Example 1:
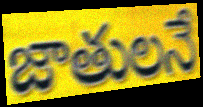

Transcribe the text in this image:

జాతులనే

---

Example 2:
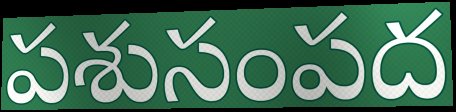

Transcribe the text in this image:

పశుసంపద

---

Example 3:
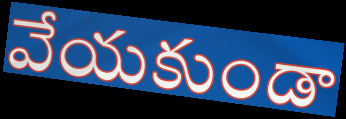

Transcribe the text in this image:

వేయకుండా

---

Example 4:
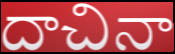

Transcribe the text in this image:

దాచినా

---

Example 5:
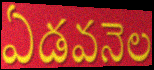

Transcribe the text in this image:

ఏడవనెల